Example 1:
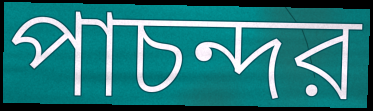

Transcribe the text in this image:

পাচন্দর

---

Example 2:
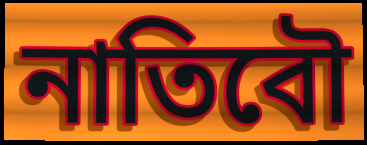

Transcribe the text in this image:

নাতিবৌ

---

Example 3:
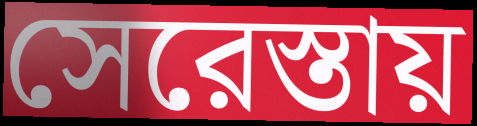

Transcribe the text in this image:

সেরেস্তায়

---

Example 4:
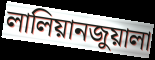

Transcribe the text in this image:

লালিয়ানজুয়ালা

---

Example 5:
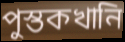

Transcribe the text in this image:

পুস্তকখানি